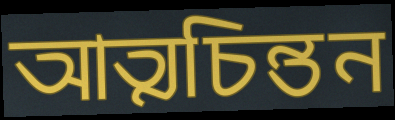
আত্মচিন্তন